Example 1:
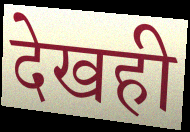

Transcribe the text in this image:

देखही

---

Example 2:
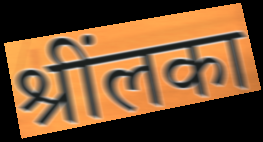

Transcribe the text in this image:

श्रींलका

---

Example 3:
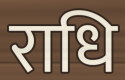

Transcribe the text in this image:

राधि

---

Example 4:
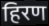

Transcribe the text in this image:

हिरण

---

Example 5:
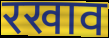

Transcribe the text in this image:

रखाव